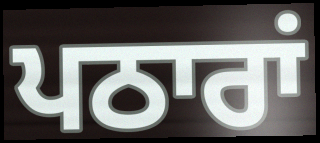
ਪਠਾਰਾਂ